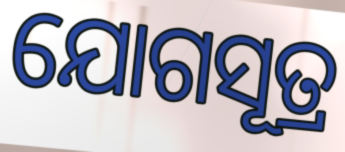
ଯୋଗସୂତ୍ର